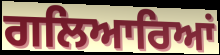
ਗਲਿਆਰਿਆਂ